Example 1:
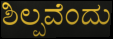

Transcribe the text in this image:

ಶಿಲ್ಪವೆಂದು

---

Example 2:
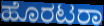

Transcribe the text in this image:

ಹೊರಟರಾ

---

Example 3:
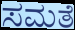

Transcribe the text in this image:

ಸಮತೆ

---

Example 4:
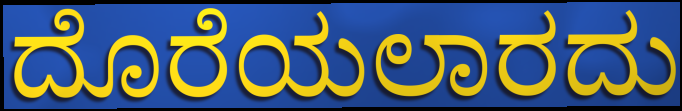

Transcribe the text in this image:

ದೊರೆಯಲಾರದು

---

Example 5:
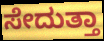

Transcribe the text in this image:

ಸೇದುತ್ತಾ